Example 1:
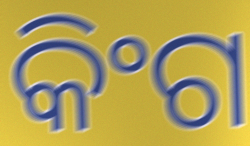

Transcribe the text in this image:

କିଂଗ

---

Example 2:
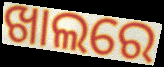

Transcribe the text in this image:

ଖାଲରେ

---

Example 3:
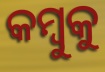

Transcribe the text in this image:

କମ୍ବୁକୁ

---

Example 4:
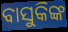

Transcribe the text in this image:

ବାସୁକିଙ୍କ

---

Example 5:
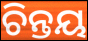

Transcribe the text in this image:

ଚିନ୍ତୟ